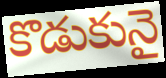
కొడుకునై